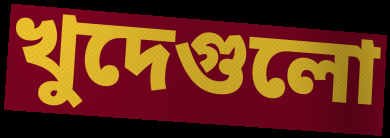
খুদেগুলো